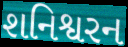
શનિશ્વરન